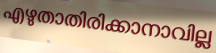
എഴുതാതിരിക്കാനാവില്ല